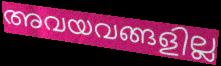
അവയവങ്ങളില്ല